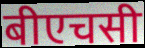
बीएचसी